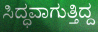
ಸಿದ್ಧವಾಗುತ್ತಿದ್ದ